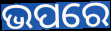
ଭପରେ